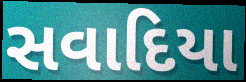
સવાદિયા